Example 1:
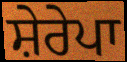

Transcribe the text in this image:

ਸ਼ੇਰੇਪਾ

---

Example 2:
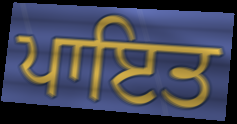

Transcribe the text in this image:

ਪਾਇਤ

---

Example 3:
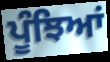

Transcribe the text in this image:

ਪੂੰਝਿਆਂ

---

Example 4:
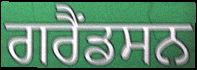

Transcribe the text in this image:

ਗਰੈਂਡਸਨ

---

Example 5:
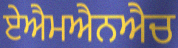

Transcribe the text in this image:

ਏਐਮਐਨਐਚ